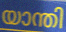
യാന്തി